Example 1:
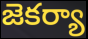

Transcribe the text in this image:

జెకర్యా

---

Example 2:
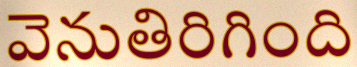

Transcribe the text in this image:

వెనుతిరిగింది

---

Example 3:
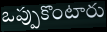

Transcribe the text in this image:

ఒప్పుకొంటారు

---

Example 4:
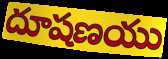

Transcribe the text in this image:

దూషణయు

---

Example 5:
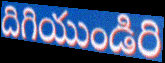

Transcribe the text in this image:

దిగియుండిరి